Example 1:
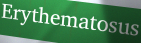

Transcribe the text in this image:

Erythematosus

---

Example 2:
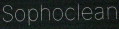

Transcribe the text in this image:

Sophoclean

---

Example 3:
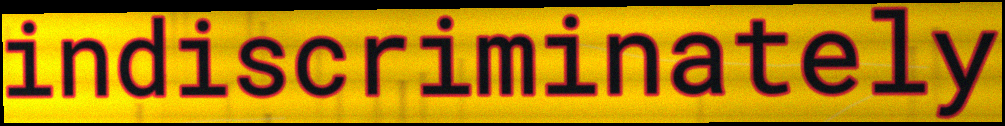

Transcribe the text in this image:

indiscriminately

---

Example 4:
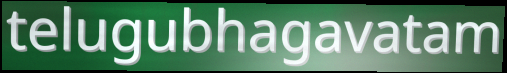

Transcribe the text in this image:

telugubhagavatam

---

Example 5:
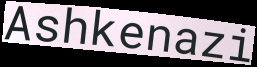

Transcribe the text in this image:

Ashkenazi